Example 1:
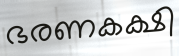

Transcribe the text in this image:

ഭരണകക്ഷി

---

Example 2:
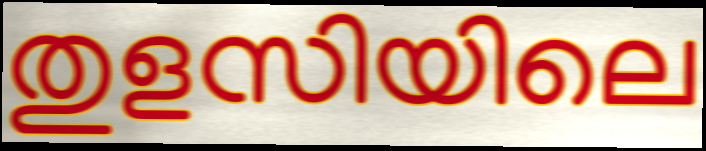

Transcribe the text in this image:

തുളസിയിലെ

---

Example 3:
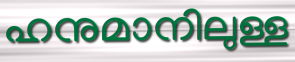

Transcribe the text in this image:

ഹനുമാനിലുള്ള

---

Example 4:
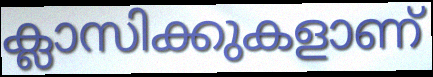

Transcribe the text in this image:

ക്ലാസിക്കുകളാണ്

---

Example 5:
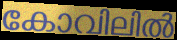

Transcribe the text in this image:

കോവിലിൽ